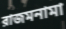
রাজমনামা